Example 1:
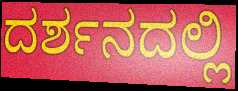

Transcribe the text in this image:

ದರ್ಶನದಲ್ಲಿ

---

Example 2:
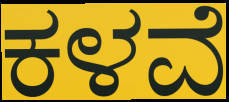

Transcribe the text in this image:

ಕಳವೆ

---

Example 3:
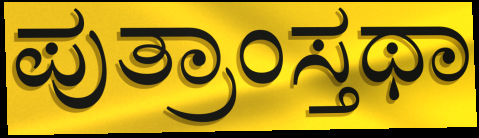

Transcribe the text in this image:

ಪುತ್ರಾಂಸ್ತಥಾ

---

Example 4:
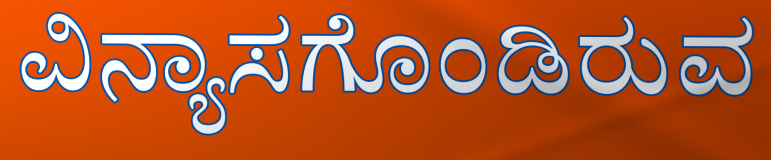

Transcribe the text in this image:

ವಿನ್ಯಾಸಗೊಂಡಿರುವ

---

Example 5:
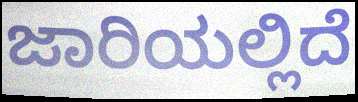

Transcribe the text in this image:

ಜಾರಿಯಲ್ಲಿದೆ